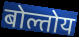
बोल्तोय